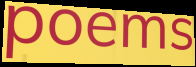
poems